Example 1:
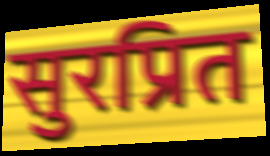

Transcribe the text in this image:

सुरप्रित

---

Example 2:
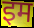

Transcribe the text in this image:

इम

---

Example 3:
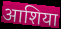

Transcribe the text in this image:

आशिया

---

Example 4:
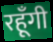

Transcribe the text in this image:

रहूँगी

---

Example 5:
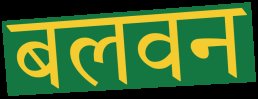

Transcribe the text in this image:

बलवन